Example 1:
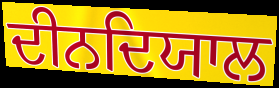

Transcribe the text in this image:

ਦੀਨਦਿਯਾਲ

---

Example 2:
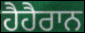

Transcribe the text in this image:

ਹੈਹੈਰਾਨ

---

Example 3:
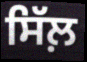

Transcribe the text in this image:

ਸਿੱਲ਼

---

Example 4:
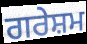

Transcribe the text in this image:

ਗਰੇਸ਼ਮ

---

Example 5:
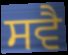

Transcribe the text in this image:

ਸਵੈ